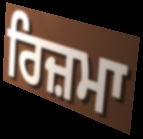
ਰਿਜ਼ਮਾ